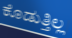
ಕೊಡುತ್ತಿಲ್ಲ